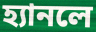
হ্যানলে